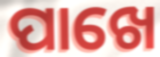
ପାଖେ